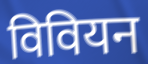
विवियन